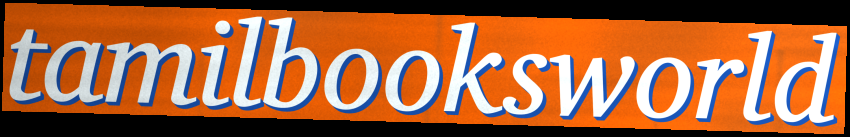
tamilbooksworld